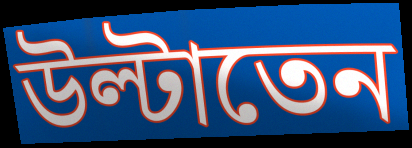
উল্টাতেন